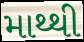
માથ્થી